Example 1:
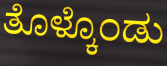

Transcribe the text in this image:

ತೊಳ್ಕೊಂಡು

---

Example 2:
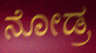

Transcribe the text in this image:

ನೋಡ್ರ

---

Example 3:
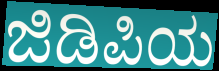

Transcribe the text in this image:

ಜಿಡಿಪಿಯ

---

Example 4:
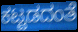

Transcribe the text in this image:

ಕಟ್ಟಡದಂತೆ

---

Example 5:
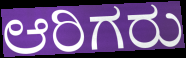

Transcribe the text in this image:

ಆರಿಗರು